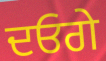
ਦਓਗੇ